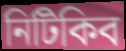
নিটিকিব